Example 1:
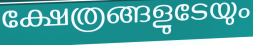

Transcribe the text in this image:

ക്ഷേത്രങ്ങളുടേയും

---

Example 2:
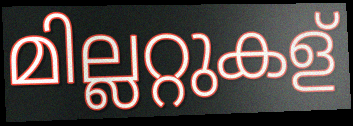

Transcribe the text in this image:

മില്ലറ്റുകള്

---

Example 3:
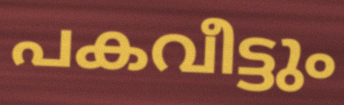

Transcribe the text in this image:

പകവീട്ടും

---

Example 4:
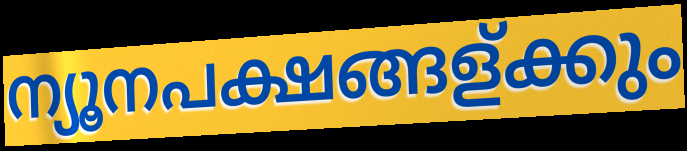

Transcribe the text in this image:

ന്യൂനപക്ഷങ്ങള്ക്കും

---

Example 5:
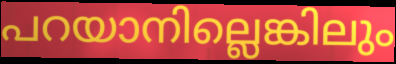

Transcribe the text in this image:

പറയാനില്ലെങ്കിലും